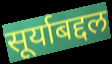
सूर्याबद्दल